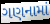
ગણનામાં